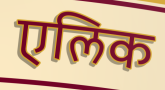
एलिक